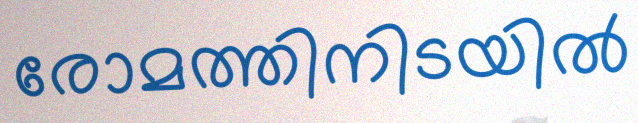
രോമത്തിനിടയിൽ